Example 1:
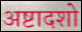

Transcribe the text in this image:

अष्टादशो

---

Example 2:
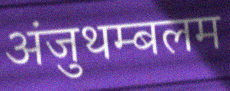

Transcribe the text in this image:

अंजुथम्बलम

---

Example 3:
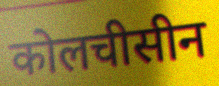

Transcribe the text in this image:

कोलचीसीन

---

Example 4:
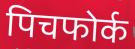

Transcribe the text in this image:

पिचफोर्क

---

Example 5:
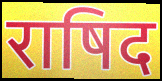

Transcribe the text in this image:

राषिद